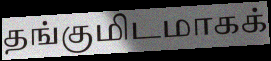
தங்குமிடமாகக்